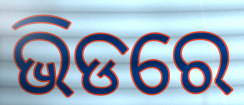
ଭିଡରେ